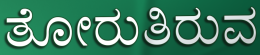
ತೋರುತಿರುವ